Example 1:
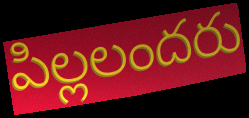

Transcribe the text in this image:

పిల్లలందరు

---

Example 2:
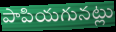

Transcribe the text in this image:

పాపియగునట్లు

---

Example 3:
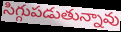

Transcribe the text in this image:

సిగ్గుపడుతున్నావు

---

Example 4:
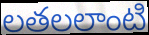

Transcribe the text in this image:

లతలలాంటి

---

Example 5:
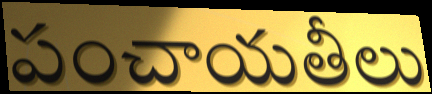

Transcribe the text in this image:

పంచాయతీలు